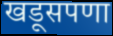
खडूसपणा